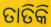
ତାତିକି